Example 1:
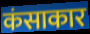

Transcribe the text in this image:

कंसाकार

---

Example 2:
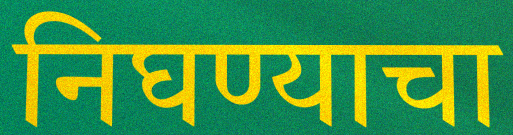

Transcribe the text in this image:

निघण्याचा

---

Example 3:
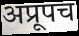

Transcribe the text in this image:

अप्रूपच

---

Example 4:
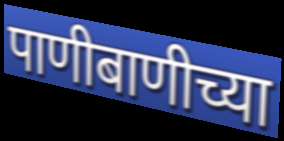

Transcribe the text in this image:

पाणीबाणीच्या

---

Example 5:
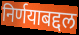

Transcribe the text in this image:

निर्णयाबद्दल